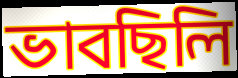
ভাবছিলি